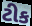
ટીક